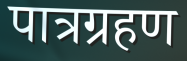
पात्रग्रहण